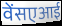
वेंसएआई